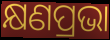
କ୍ଷଣପ୍ରଭା